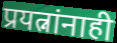
प्रयत्नांनाही